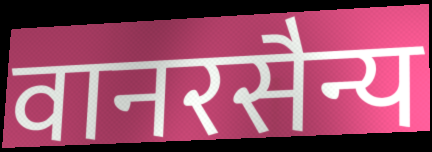
वानरसैन्य